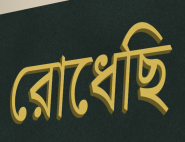
রোধেছি